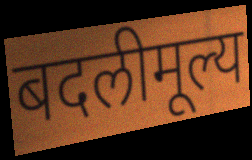
बदलीमूल्य